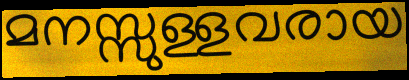
മനസ്സുള്ളവരായ